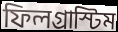
ফিলগ্রাস্টিম